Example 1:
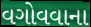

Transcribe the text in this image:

વગોવવાના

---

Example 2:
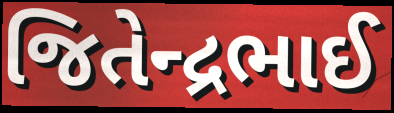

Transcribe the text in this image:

જિતેન્દ્રભાઈ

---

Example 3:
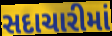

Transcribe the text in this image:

સદાચારીમાં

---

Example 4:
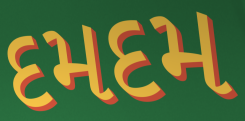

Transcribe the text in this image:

દમદમ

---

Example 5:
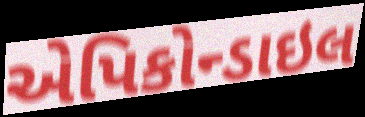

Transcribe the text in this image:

એપિકોન્ડાઇલ